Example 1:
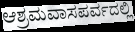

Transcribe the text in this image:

ಆಶ್ರಮವಾಸಪರ್ವದಲ್ಲಿ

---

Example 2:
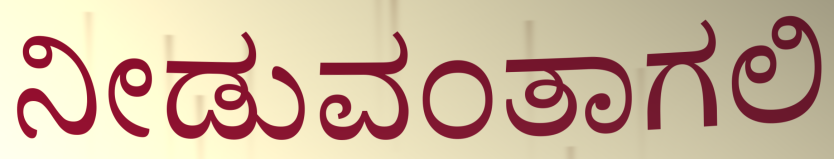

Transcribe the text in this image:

ನೀಡುವಂತಾಗಲಿ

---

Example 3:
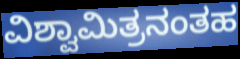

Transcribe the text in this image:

ವಿಶ್ವಾಮಿತ್ರನಂತಹ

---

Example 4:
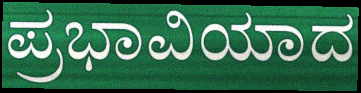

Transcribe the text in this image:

ಪ್ರಭಾವಿಯಾದ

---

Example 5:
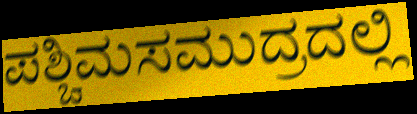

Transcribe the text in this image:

ಪಶ್ಚಿಮಸಮುದ್ರದಲ್ಲಿ